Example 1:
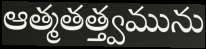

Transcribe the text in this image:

ఆత్మతత్త్వమును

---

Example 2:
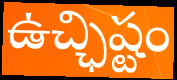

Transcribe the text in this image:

ఉచ్ఛిష్టం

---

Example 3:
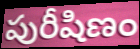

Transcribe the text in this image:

పురీషిణం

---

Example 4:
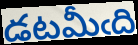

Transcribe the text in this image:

డటమీఁది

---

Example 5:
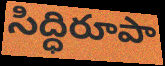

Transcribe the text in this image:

సిద్ధిరూపా